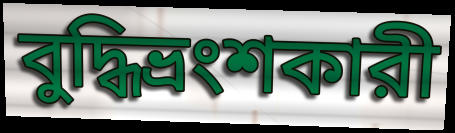
বুদ্ধিভ্রংশকারী